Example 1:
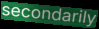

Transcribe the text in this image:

secondarily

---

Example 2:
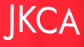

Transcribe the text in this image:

JKCA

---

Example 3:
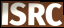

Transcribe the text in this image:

ISRC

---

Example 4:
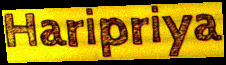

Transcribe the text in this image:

Haripriya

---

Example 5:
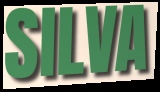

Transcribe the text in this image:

SILVA